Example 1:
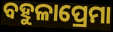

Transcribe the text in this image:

ବହୁଳାପ୍ରେମା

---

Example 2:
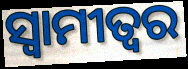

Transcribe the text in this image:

ସ୍ୱାମୀତ୍ୱର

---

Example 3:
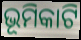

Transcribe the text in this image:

ଭୂମିକାଟି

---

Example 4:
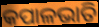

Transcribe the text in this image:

କପାଳଭାତି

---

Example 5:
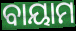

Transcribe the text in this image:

ବାୟାମ